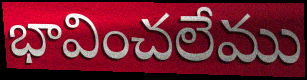
భావించలేము